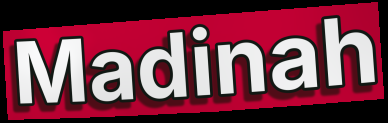
Madinah